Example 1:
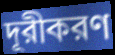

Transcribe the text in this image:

দূরীকরণ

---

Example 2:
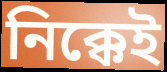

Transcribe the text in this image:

নিক্কেই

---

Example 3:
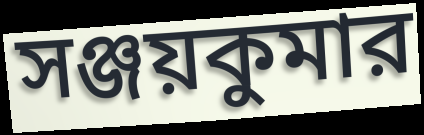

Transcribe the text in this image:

সঞ্জয়কুমার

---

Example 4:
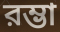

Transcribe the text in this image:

রম্ভা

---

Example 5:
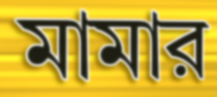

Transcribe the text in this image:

মামার